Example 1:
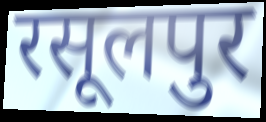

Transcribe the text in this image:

रसूलपुर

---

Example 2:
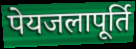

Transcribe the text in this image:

पेयजलापूर्ति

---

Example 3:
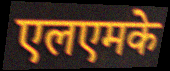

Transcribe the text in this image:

एलएमके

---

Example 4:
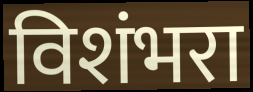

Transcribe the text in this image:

विशंभरा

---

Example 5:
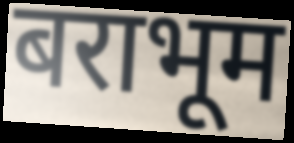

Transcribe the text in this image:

बराभूम